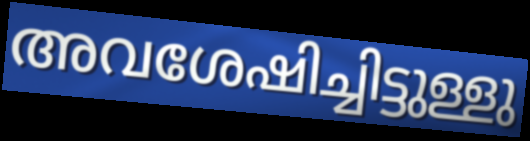
അവശേഷിച്ചിട്ടുള്ളു